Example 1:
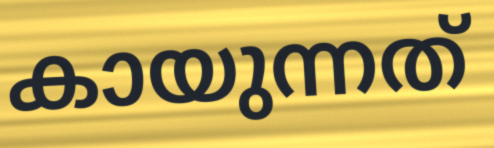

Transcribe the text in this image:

കായുന്നത്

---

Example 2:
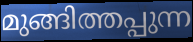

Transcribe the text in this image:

മുങ്ങിത്തപ്പുന്ന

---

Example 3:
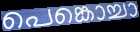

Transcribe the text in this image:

പെങ്കൊച്ചാ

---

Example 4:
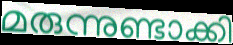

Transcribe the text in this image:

മരുന്നുണ്ടാക്കി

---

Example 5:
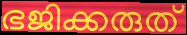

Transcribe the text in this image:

ഭജിക്കരുത്